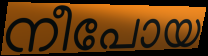
നീപോയ